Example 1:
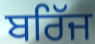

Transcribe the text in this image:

ਬਰਿੱਜ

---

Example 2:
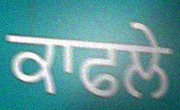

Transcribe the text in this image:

ਕਾਫਲੇ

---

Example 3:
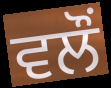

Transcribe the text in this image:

ਵਲੌੰ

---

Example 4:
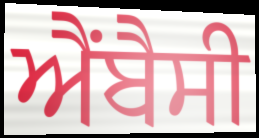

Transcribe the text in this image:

ਐਂਬੈਸੀ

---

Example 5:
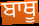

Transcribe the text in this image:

ਬਾਥੂ